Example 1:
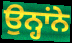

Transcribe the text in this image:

ਉਨ੍ਹਾਂਨੇ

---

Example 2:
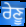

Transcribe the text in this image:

ਰੇਣੂ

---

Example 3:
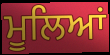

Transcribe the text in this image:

ਮੂਲਿਆਂ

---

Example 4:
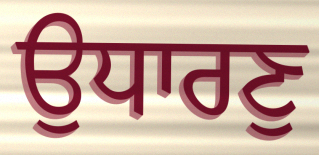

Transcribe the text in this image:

ਉਧਾਰਣੁ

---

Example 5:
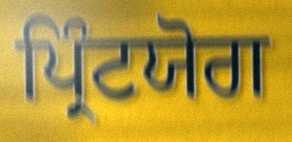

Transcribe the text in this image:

ਪ੍ਰਿੰਟਯੋਗ